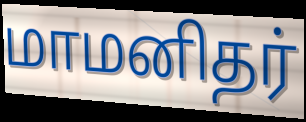
மாமனிதர்